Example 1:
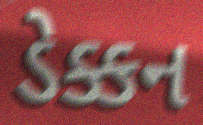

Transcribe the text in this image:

ડેક્કન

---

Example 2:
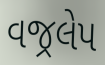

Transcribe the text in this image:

વજ્રલેપ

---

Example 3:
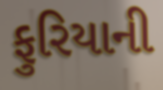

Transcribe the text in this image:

ફુરિયાની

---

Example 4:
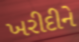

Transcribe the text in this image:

ખરીદીને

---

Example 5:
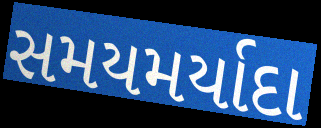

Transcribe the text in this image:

સમયમર્યાદા